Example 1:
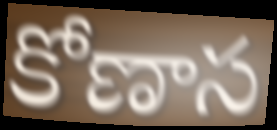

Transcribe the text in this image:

కోణాస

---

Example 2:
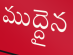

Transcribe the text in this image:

ముద్దైన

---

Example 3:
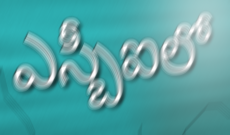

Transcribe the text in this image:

ఎస్బీఐలో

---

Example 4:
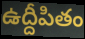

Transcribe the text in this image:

ఉద్దీపితం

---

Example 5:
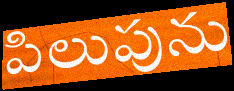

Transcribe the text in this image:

పిలుపును